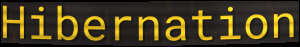
Hibernation